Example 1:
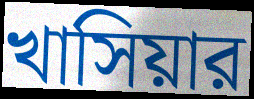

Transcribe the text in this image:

খাসিয়ার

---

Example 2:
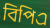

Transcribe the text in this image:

বিপিএ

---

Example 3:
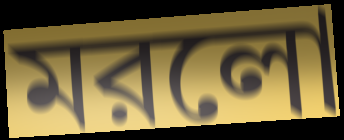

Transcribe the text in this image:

মরলো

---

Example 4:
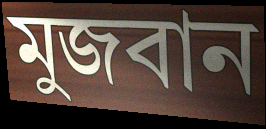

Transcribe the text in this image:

মুজবান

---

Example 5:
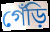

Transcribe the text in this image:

গেঁড়ি